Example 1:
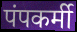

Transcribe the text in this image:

पंपकर्मी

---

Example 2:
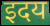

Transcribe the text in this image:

इदय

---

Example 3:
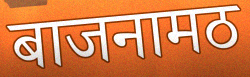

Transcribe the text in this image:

बाजनामठ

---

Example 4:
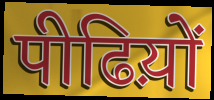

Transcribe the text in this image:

पीढिय़ों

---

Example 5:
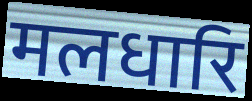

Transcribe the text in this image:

मलधारि